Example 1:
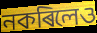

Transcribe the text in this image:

নকৰিলেও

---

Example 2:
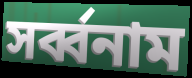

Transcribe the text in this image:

সৰ্ব্বনাম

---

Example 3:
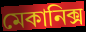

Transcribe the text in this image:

মেকানিক্স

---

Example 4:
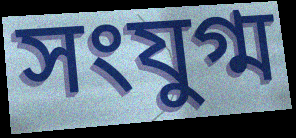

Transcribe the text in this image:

সংযুগ্ম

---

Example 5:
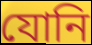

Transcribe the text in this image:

যোনি